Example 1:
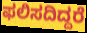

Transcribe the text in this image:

ಫಲಿಸದಿದ್ದರೆ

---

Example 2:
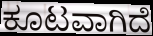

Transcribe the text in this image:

ಕೂಟವಾಗಿದೆ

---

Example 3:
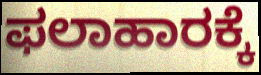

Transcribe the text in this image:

ಫಲಾಹಾರಕ್ಕೆ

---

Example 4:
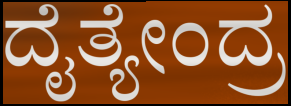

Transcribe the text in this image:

ದೈತ್ಯೇಂದ್ರ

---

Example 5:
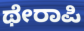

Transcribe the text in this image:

ಥೇರಾಪಿ